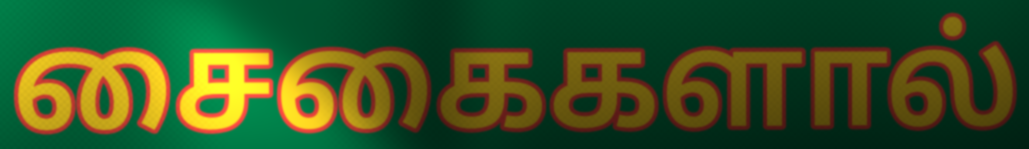
சைகைகளால்